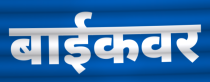
बाईकवर